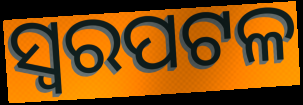
ସ୍ୱରପଟଳ